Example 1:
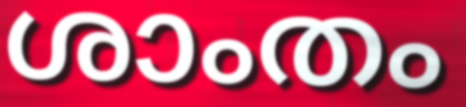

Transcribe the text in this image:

ശാംതം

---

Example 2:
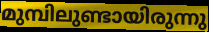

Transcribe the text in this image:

മുമ്പിലുണ്ടായിരുന്നു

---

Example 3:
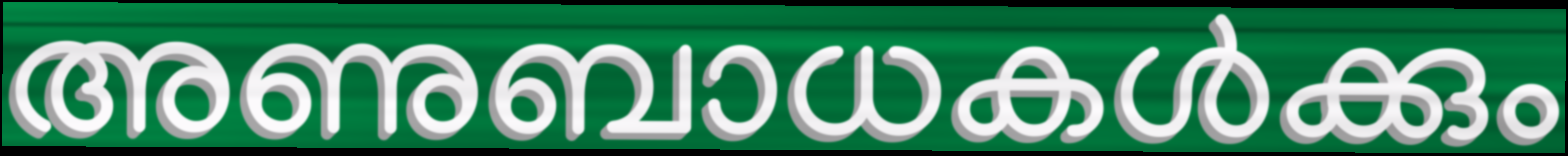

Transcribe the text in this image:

അണുബാധകൾക്കും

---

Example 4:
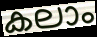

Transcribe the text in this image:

കലാം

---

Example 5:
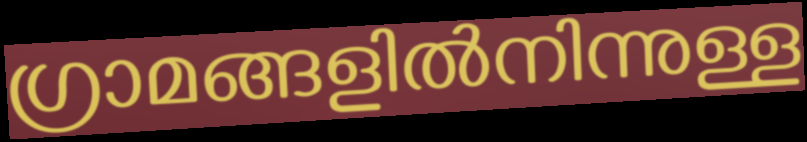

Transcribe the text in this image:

ഗ്രാമങ്ങളിൽനിന്നുള്ള